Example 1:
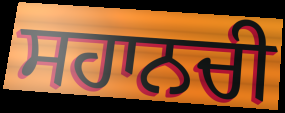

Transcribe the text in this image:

ਸਹਾਨਚੀ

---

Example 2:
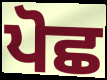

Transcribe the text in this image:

ਪੋਛ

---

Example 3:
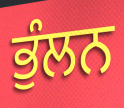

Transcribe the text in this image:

ਭੁੰਲਨ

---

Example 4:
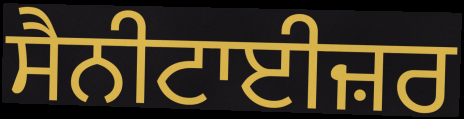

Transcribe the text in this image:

ਸੈਨੀਟਾਈਜ਼ਰ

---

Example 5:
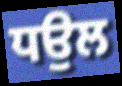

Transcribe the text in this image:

ਧਉਲ